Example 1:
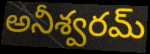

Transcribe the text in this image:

అనీశ్వరమ్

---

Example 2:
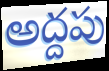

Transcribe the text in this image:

అద్దపు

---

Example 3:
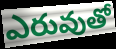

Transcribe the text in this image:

ఎరువుతో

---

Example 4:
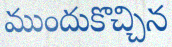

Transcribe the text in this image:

ముందుకొచ్చిన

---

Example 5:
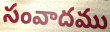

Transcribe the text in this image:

సంవాదము